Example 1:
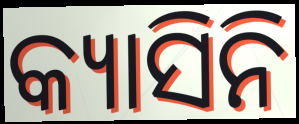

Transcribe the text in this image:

କ୍ୟାସିନି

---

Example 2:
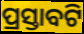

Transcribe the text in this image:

ପ୍ରସ୍ତାବଟି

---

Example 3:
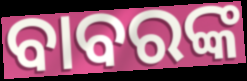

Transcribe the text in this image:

ବାବରଙ୍କ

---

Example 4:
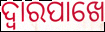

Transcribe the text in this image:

ଦ୍ୱାରପାଖେ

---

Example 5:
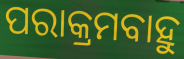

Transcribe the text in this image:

ପରାକ୍ରମବାହୁ